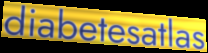
diabetesatlas